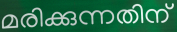
മരിക്കുന്നതിന്